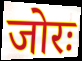
जोरः